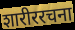
शारीररचना